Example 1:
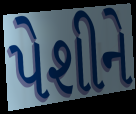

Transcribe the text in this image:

પેશીને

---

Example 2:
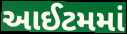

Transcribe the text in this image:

આઈટમમાં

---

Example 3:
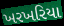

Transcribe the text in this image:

ખરખરિયા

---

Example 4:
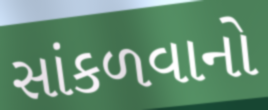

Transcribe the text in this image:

સાંકળવાનો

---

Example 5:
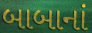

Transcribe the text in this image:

બાબાનાં